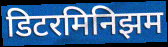
डिटरमिनिझम